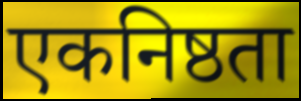
एकनिष्ठता